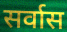
सर्वास